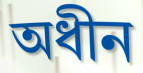
অধীন